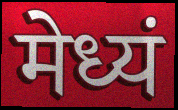
मेध्यं